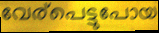
വേര്പെട്ടുപോയ